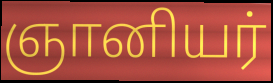
ஞானியர்